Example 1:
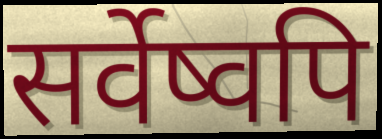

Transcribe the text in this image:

सर्वेष्वपि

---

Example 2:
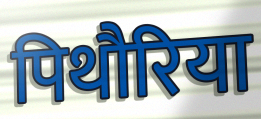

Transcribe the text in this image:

पिथौरिया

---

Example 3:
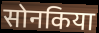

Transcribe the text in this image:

सोनकिया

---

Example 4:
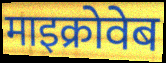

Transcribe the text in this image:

माइक्रोवेब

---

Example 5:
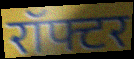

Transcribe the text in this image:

रॉफ्टर